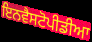
ਇਨਵੈਸਟੋਪੀਡੀਆ